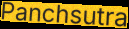
Panchsutra